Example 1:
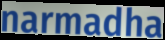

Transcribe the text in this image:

narmadha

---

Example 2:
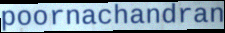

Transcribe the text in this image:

poornachandran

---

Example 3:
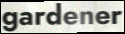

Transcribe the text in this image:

gardener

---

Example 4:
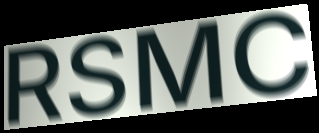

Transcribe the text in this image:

RSMC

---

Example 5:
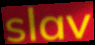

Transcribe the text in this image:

slav